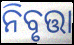
ନିବୃତ୍ତା